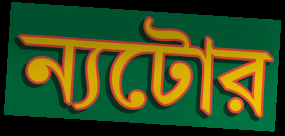
ন্যটোর